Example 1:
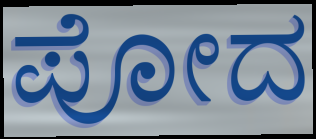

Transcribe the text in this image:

ಪೋದ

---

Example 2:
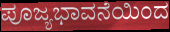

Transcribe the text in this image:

ಪೂಜ್ಯಭಾವನೆಯಿಂದ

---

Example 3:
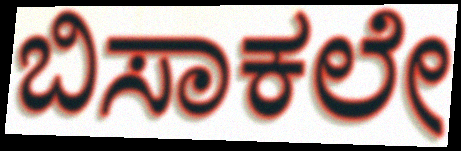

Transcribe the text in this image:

ಬಿಸಾಕಲೇ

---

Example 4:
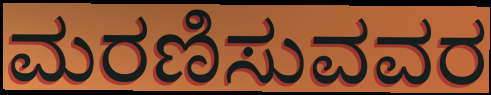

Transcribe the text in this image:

ಮರಣಿಸುವವರ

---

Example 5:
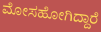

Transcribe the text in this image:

ಮೋಸಹೋಗಿದ್ದಾರೆ